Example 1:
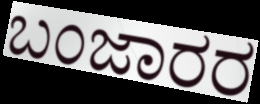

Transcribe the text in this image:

ಬಂಜಾರರ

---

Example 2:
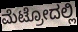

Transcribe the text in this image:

ಮೆಟ್ರೋದಲ್ಲಿ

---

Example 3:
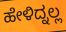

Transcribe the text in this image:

ಹೇಳಿದ್ನಲ್ಲ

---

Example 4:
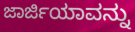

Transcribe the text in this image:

ಜಾರ್ಜಿಯಾವನ್ನು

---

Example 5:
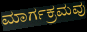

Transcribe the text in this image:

ಮಾರ್ಗಕ್ರಮವು